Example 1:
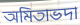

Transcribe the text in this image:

অমিতাভদা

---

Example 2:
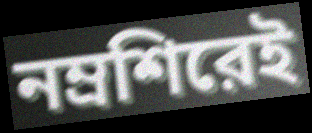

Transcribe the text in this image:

নম্রশিরেই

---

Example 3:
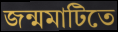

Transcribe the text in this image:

জন্মমাটিতে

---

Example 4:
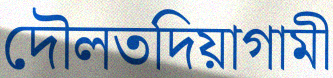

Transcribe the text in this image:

দৌলতদিয়াগামী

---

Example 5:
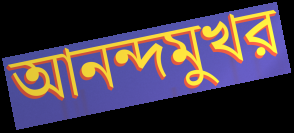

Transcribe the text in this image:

আনন্দমুখর